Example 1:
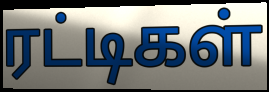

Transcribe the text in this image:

ரட்டிகள்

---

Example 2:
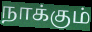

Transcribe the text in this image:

நாக்கும்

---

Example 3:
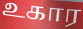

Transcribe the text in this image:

உகார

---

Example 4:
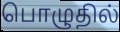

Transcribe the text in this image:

பொழுதில்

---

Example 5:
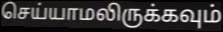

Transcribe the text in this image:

செய்யாமலிருக்கவும்